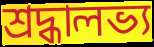
শ্রদ্ধালভ্য